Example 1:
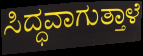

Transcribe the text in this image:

ಸಿದ್ಧವಾಗುತ್ತಾಳೆ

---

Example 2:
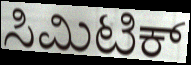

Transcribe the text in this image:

ಸಿಮಿಟಿಕ್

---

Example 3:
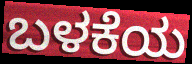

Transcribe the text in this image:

ಬಳಕೆಯ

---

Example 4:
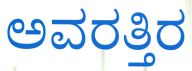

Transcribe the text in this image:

ಅವರತ್ತಿರ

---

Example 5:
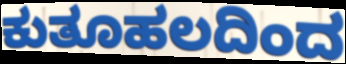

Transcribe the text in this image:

ಕುತೂಹಲದಿಂದ